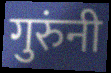
गुरुंनी